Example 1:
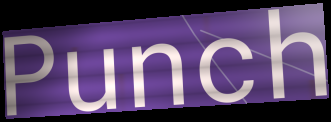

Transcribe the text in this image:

Punch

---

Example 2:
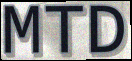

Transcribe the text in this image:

MTD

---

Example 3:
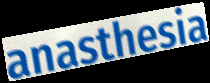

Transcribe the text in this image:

anasthesia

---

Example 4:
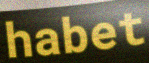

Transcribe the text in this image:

habet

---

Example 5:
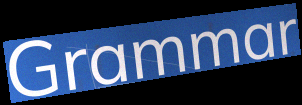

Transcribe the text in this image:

Grammar